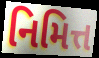
નિમિત્ત